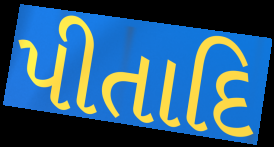
પીતાદિ